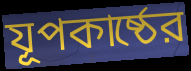
যূপকাষ্ঠের